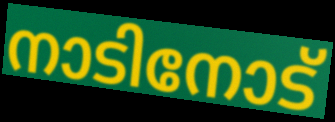
നാടിനോട്